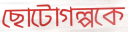
ছোটোগল্পকে